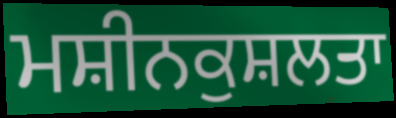
ਮਸ਼ੀਨਕੁਸ਼ਲਤਾ